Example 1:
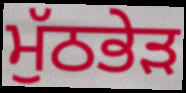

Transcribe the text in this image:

ਮੁੱਠਭੇੜ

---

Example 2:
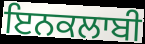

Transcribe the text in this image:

ਇਨਕਲਾਬੀ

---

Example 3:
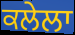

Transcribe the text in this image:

ਕਲੇਲਾ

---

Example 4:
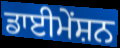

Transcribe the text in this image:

ਡਾਈਮੇਂਸ਼ਨ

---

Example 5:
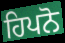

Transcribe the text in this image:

ਹਿਪਨੋ